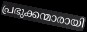
പ്രഭുക്കന്മാരായി